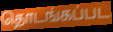
தொடங்கப்பட